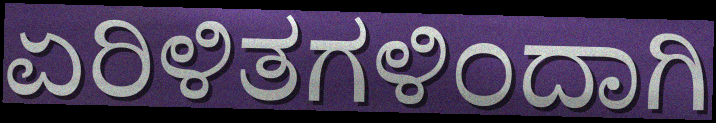
ಏರಿಳಿತಗಳಿಂದಾಗಿ